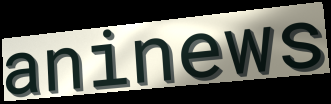
aninews